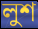
লুশ